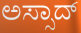
ಅಸ್ಸಾದ್